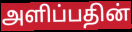
அளிப்பதின்